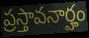
ప్రస్తావనార్హం